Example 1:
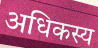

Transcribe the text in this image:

अधिकस्य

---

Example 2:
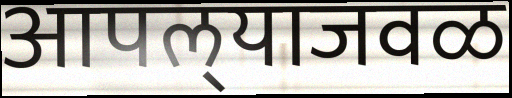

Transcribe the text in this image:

आपल्याजवळ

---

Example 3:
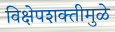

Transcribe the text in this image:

विक्षेपशक्तीमुळे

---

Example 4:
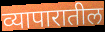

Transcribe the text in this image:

व्यापारातील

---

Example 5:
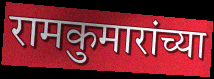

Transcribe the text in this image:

रामकुमारांच्या